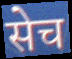
सेच